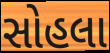
સોહલા